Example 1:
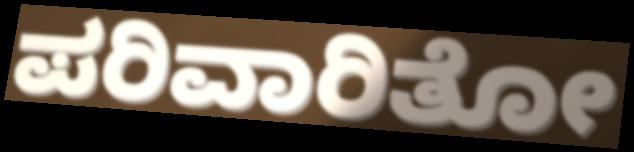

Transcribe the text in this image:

ಪರಿವಾರಿತೋ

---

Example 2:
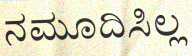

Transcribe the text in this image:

ನಮೂದಿಸಿಲ್ಲ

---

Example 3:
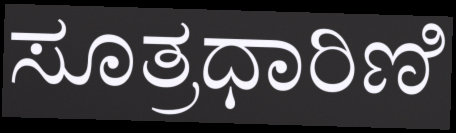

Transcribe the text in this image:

ಸೂತ್ರಧಾರಿಣಿ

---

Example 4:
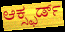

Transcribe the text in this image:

ಆಕ್ಸ್ಫರ್ಡ್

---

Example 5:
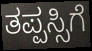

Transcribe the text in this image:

ತಪ್ಪಸ್ಸಿಗೆ